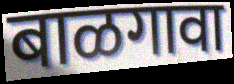
बाळगावा